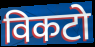
विकटो